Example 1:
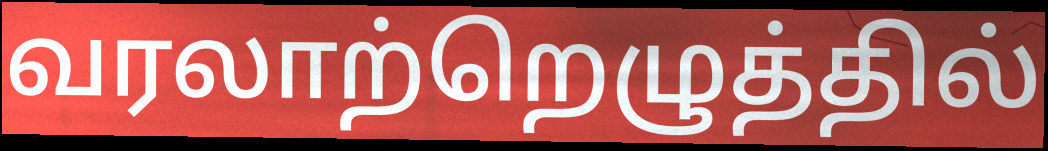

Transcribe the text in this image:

வரலாற்றெழுத்தில்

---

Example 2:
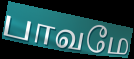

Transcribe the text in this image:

பாவமே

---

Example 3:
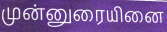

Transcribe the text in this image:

முன்னுரையினை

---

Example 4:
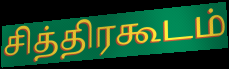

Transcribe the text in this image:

சித்திரகூடம்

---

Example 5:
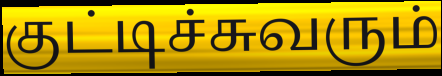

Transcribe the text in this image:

குட்டிச்சுவரும்